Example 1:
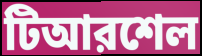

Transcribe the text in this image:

টিআরশেল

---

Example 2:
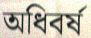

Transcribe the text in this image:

অধিবর্ষ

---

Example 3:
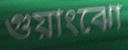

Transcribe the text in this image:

গুয়াংঝো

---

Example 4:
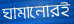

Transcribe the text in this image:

ঘামানোরই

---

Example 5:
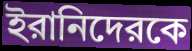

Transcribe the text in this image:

ইরানিদেরকে